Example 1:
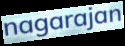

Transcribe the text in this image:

nagarajan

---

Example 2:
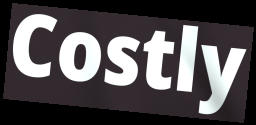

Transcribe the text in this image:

Costly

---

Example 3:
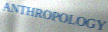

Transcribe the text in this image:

ANTHROPOLOGY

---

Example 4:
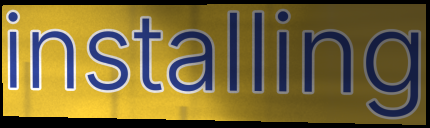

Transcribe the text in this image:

installing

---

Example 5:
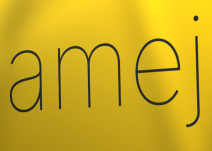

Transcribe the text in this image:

amej